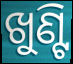
ଖୁଣ୍ଟି